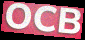
OCB